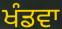
ਖੰਡਵਾ